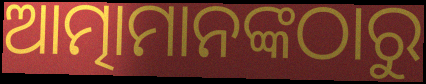
ଆତ୍ମାମାନଙ୍କଠାରୁ